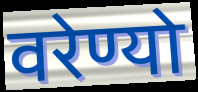
वरेण्यो